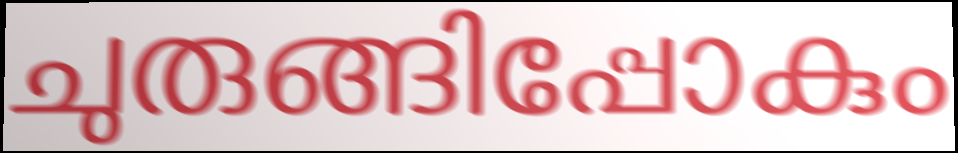
ചുരുങ്ങിപ്പോകും